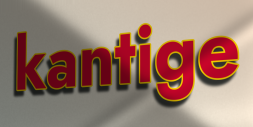
kantige